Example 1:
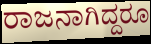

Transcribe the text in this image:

ರಾಜನಾಗಿದ್ದರೂ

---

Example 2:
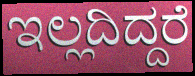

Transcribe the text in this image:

ಇಲ್ಲದಿದ್ದರೆ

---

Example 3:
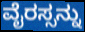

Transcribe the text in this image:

ವೈರಸ್ಸನ್ನು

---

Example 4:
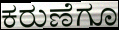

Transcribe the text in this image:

ಕರುಣೆಗೂ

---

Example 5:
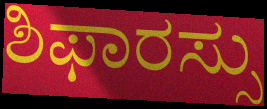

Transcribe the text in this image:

ಶಿಫಾರಸ್ಸು